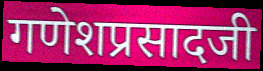
गणेशप्रसादजी